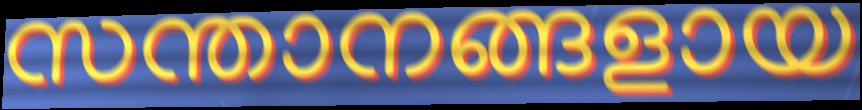
സന്താനങ്ങളായ